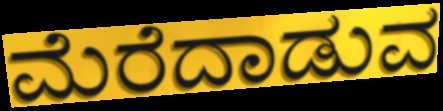
ಮೆರೆದಾಡುವ